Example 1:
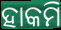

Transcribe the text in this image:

ହାକମି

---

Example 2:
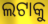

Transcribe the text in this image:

ଲଟାକୁ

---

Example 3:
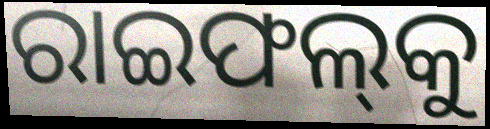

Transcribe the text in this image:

ରାଇଫଲ୍‍କୁ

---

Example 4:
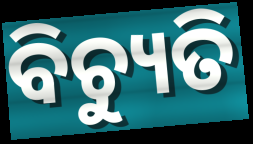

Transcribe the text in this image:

ବିଚ୍ୟୁତି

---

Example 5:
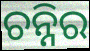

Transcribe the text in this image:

ଚନ୍ନିର